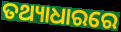
ତଥ୍ୟାଧାରରେ